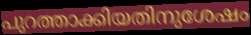
പുറത്താക്കിയതിനുശേഷം